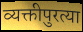
व्यक्तीपुरत्या